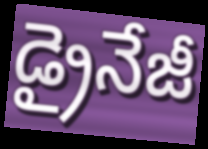
డ్రైనేజీ